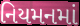
નિયમનમાં